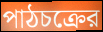
পাঠচক্রের